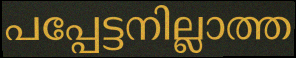
പപ്പേട്ടനില്ലാത്ത